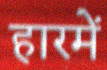
हारमें